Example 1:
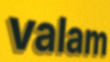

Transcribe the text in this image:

valam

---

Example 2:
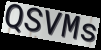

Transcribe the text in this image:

QSVMs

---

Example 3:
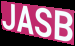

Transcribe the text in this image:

JASB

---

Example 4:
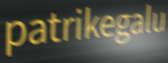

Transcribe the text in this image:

patrikegalu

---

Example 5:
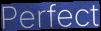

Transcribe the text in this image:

Perfect